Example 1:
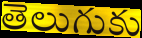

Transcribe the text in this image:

తెలుగుకు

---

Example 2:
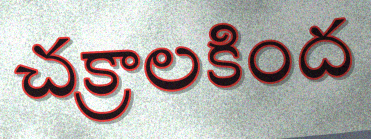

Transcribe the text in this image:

చక్రాలకింద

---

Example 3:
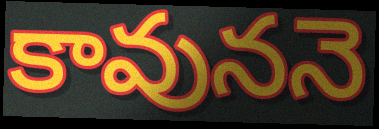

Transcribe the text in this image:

కావుననె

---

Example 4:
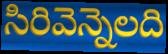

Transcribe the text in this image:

సిరివెన్నెలది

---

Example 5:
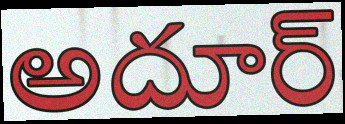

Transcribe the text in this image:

అదూర్